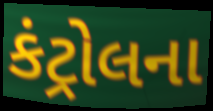
કંટ્રોલના